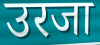
उरजा